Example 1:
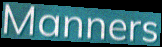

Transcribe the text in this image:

Manners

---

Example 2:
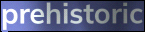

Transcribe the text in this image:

prehistoric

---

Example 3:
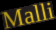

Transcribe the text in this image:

Malli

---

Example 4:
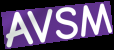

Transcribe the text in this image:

AVSM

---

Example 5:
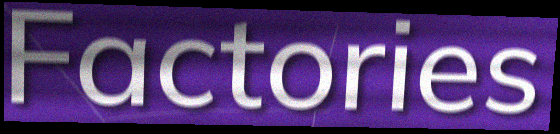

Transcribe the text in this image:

Factories